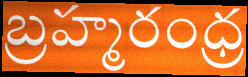
బ్రహ్మరంధ్ర